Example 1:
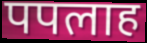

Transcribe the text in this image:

पपलाह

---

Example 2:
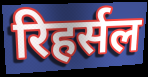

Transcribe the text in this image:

रिहर्सल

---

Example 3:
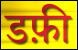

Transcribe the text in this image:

डफ़ी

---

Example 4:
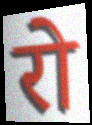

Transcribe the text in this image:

रो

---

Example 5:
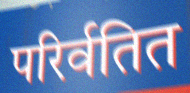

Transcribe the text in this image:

परिर्वतित